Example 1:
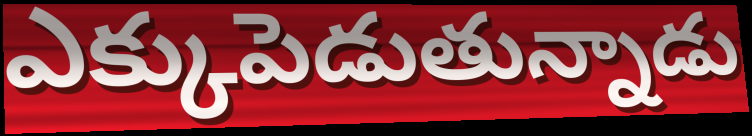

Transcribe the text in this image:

ఎక్కుపెడుతున్నాడు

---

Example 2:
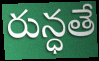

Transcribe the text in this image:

రున్ధతే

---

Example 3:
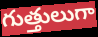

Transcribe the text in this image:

గుత్తులుగా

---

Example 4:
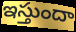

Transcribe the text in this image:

ఇస్తుందా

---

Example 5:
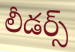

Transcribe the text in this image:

లీడర్స్